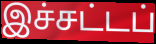
இச்சட்டப்